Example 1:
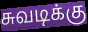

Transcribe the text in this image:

சுவடிக்கு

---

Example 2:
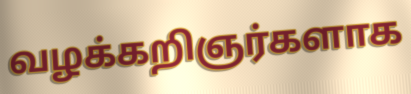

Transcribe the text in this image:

வழக்கறிஞர்களாக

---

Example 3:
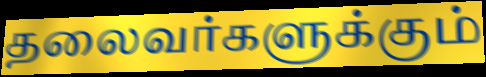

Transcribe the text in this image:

தலைவர்களுக்கும்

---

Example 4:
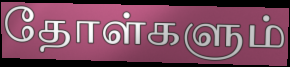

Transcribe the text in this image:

தோள்களும்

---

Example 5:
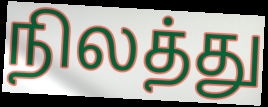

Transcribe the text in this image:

நிலத்து